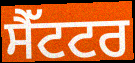
ਸੈੱਟਟਰ